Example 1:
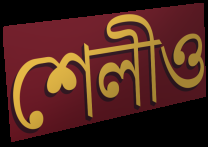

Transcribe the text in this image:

শেলীও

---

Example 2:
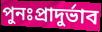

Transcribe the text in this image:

পুনঃপ্রাদুর্ভাব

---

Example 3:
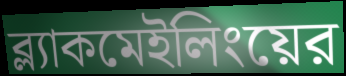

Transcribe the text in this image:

ব্ল্যাকমেইলিংয়ের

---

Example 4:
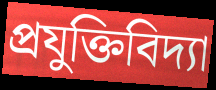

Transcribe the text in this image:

প্রযুক্তিবিদ্যা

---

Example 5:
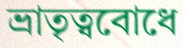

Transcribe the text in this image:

ভ্রাতৃত্ববোধে